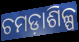
ଚମଡ଼ାଶିଳ୍ପ